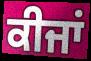
ਕੀਜਾਂ